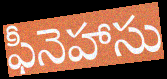
ఫీనెహాసు